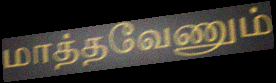
மாத்தவேணும்